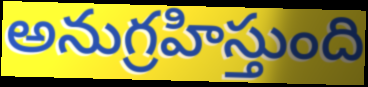
అనుగ్రహిస్తుంది